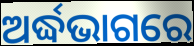
ଅର୍ଦ୍ଧଭାଗରେ